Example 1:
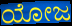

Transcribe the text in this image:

ಯೋಜ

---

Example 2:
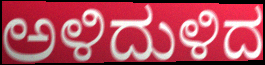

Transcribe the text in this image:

ಅಳಿದುಳಿದ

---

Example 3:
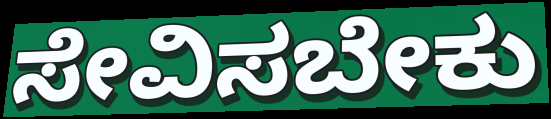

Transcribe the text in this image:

ಸೇವಿಸಬೇಕು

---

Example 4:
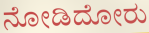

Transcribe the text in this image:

ನೋಡಿದೋರು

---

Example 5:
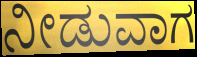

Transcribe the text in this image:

ನೀಡುವಾಗ